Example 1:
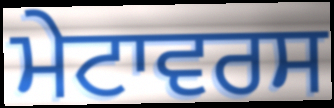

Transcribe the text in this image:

ਮੇਟਾਵਰਸ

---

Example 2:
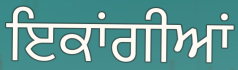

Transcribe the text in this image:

ਇਕਾਂਗੀਆਂ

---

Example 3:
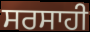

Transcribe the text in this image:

ਸਰਸਾਹੀ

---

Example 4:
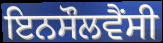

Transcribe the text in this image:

ਇਨਸੌਲਵੈਂਸੀ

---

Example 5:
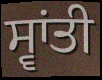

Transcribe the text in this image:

ਸ੍ਵਾਂਤੀ